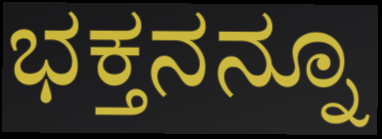
ಭಕ್ತನನ್ನೂ